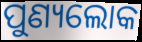
ପୁଣ୍ୟଲୋକ